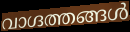
വാഗ്ദത്തങ്ങൾ